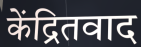
केंद्रितवाद